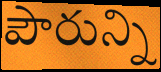
పౌరున్ని